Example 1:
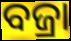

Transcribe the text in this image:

ବଜ୍ରା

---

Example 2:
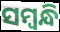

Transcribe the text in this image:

ସମ୍ବନ୍ଧି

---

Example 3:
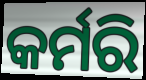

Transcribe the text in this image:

କର୍ମରି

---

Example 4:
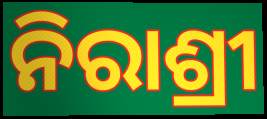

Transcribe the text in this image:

ନିରାଶ୍ରୀ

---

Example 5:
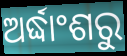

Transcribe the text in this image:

ଅର୍ଦ୍ଧାଂଶରୁ